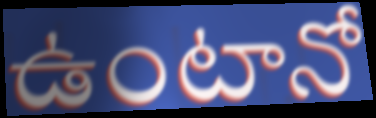
ఉంటానో